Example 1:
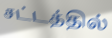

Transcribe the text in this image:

சட்டத்தில்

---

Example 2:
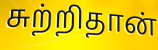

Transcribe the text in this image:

சுற்றிதான்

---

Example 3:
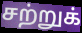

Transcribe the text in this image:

சற்றுக்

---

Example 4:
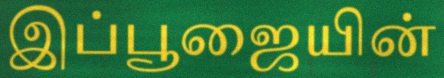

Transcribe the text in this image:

இப்பூஜையின்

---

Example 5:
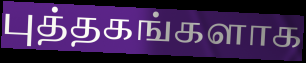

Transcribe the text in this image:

புத்தகங்களாக